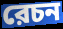
রেচন